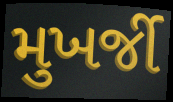
મુખર્જી